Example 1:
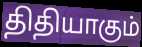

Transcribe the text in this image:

திதியாகும்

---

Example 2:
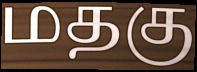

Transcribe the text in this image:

மதகு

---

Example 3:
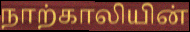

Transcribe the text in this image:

நாற்காலியின்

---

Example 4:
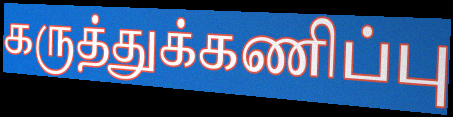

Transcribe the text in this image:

கருத்துக்கணிப்பு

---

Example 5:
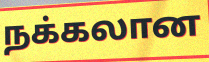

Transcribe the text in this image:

நக்கலான